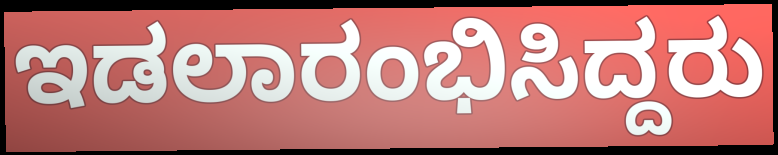
ಇಡಲಾರಂಭಿಸಿದ್ದರು